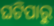
ଘଟିପାରୁ